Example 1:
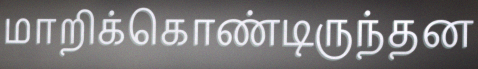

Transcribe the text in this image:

மாறிக்கொண்டிருந்தன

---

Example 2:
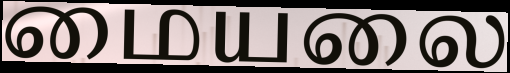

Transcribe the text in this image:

மையலை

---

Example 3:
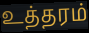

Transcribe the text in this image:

உத்தரம்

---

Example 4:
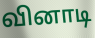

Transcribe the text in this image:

வினாடி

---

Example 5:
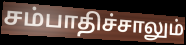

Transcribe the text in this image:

சம்பாதிச்சாலும்